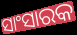
ସାଂସାରକ